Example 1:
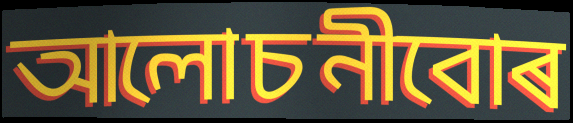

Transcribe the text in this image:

আলোচনীবোৰ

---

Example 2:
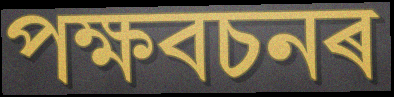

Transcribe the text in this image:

পক্ষবচনৰ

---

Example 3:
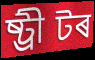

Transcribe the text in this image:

ষ্ট্ৰীটৰ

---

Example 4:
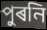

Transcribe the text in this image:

পুৰনি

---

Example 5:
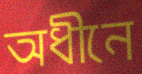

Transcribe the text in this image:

অধীনে